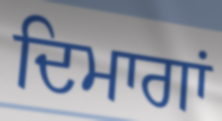
ਦਿਮਾਗਾਂ